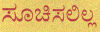
ಸೂಚಿಸಲಿಲ್ಲ